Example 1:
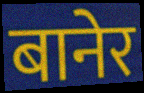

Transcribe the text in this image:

बानेर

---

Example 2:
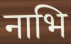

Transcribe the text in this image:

नाभि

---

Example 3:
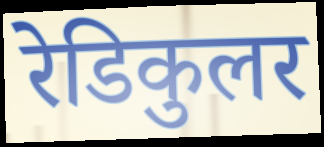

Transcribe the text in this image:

रेडिकुलर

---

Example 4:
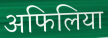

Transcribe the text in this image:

अफिलिया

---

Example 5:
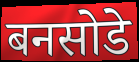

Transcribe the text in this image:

बनसोडे